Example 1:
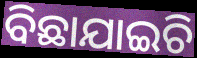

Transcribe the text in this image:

ବିଛାଯାଇଚି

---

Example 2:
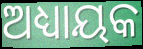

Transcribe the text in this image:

ଅଧ୍ୟାୟକ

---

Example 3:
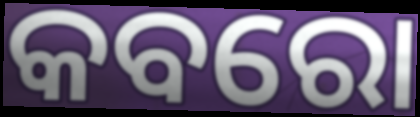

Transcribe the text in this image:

କବରୋ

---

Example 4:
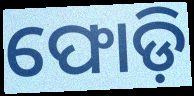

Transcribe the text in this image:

ଫୋଡ଼ି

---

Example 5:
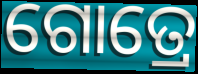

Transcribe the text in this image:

ଗୋତ୍ରେ